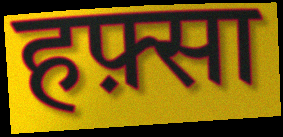
हफ़्सा